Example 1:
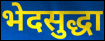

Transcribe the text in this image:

भेदसुद्धा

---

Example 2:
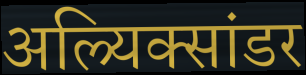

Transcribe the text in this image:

अल्यिक्सांडर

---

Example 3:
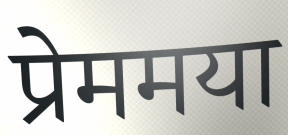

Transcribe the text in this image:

प्रेममया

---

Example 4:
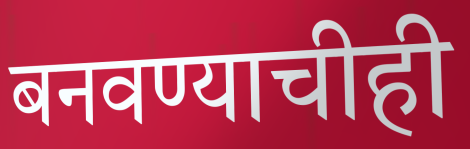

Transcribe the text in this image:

बनवण्याचीही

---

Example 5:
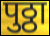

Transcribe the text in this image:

पुठ्ठा